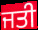
ਜਤੀ